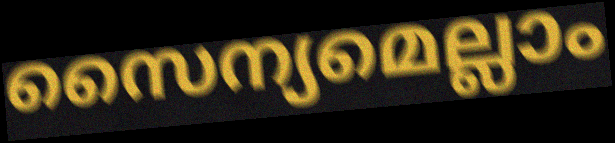
സൈന്യമെല്ലാം